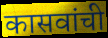
कासवांची